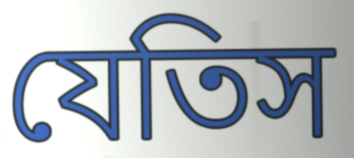
যেতিস